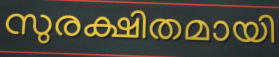
സുരക്ഷിതമായി